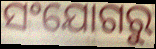
ସଂଯୋଗରୁ